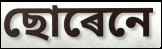
ছোৰেনে